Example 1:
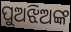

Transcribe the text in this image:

ପୁଅଝିଅଙ୍କ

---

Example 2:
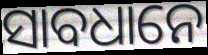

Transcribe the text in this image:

ସାବଧାନେ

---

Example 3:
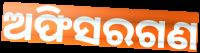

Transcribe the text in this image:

ଅଫିସରଗଣ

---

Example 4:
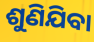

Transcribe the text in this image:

ଶୁଣିଯିବା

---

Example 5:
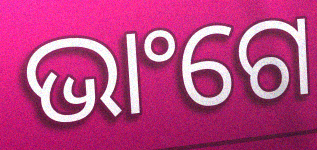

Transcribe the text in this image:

ଭାଂଗେ